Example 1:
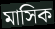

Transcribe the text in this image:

মাসিক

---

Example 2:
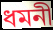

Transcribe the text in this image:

ধমনী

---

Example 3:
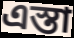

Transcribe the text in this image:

এস্তা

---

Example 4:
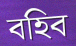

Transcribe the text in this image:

বহিব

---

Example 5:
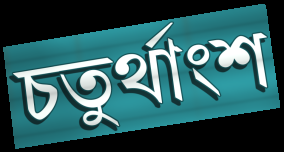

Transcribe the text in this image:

চতুর্থাংশ